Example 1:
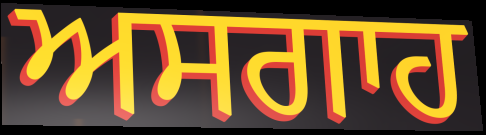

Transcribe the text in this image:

ਅਸਗਾਹ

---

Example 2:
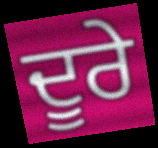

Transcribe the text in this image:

ਦੂਰੇ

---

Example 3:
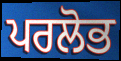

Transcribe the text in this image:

ਪਰਲੋਭ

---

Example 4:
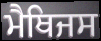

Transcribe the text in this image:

ਮੈਥਿਜਸ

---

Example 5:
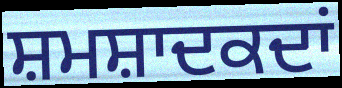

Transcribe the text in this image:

ਸ਼ਮਸ਼ਾਦਕਦਾਂ